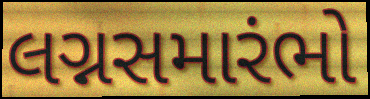
લગ્નસમારંભો